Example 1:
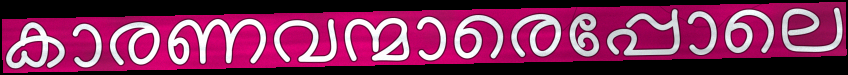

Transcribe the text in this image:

കാരണവന്മാരെപ്പോലെ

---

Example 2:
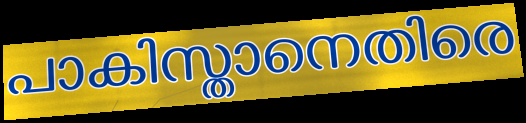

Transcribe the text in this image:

പാകിസ്താനെതിരെ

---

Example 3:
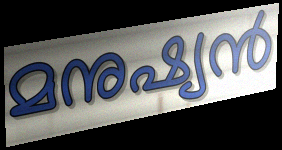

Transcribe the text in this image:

മനുഷ്യൻ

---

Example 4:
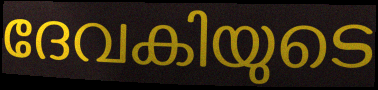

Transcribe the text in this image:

ദേവകിയുടെ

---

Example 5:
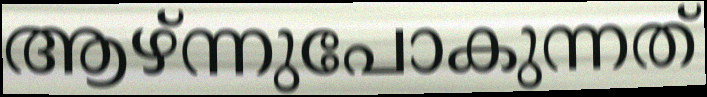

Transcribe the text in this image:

ആഴ്ന്നുപോകുന്നത്